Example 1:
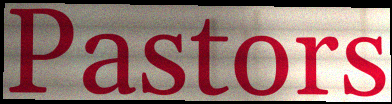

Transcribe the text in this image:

Pastors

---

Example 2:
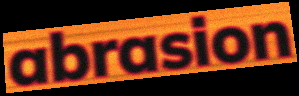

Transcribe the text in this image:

abrasion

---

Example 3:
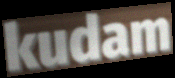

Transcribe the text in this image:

kudam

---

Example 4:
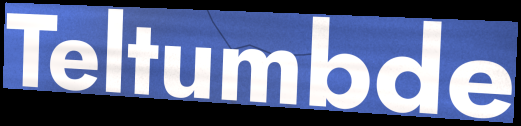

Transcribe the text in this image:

Teltumbde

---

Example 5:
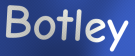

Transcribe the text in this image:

Botley